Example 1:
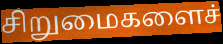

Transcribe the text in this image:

சிறுமைகளைச்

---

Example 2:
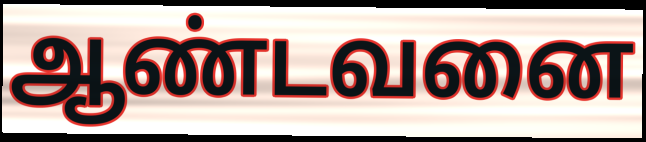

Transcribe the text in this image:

ஆண்டவனை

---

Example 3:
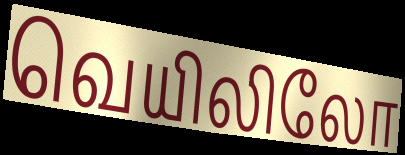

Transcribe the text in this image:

வெயிலிலோ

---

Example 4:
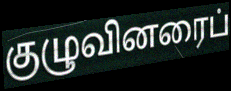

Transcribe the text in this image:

குழுவினரைப்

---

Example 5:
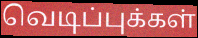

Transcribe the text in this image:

வெடிப்புக்கள்